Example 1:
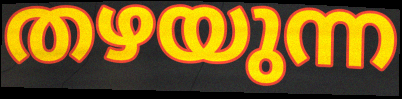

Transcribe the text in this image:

തഴയുന്ന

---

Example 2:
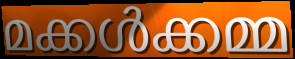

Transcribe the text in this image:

മക്കൾക്കമ്മ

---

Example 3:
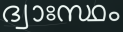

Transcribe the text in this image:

ദ്വാഃസ്ഥം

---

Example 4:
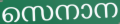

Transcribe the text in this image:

സെനാന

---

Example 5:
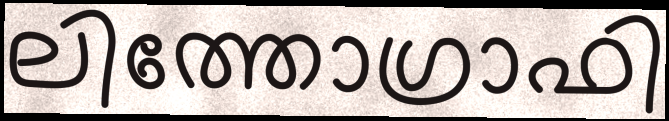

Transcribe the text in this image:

ലിത്തോഗ്രാഫി